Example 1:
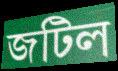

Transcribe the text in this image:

জটিল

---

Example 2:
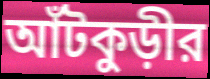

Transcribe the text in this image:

আঁটকুড়ীর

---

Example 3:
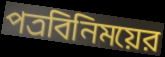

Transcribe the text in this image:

পত্রবিনিময়ের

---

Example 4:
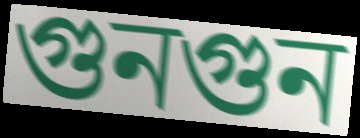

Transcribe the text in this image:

গুনগুন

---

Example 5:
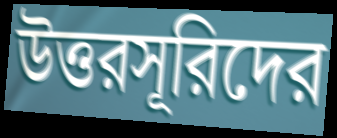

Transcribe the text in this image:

উত্তরসূরিদের